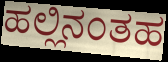
ಹಲ್ಲಿನಂತಹ